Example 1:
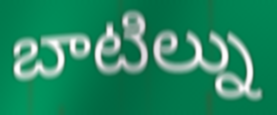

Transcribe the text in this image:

బాటిల్ను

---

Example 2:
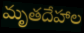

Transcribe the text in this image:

మృతదేహాల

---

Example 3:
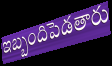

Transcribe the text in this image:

ఇబ్బందిపెడతారు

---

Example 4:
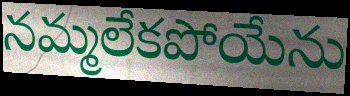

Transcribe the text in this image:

నమ్మలేకపోయేను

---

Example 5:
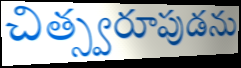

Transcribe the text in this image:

చిత్స్వరూపుడను